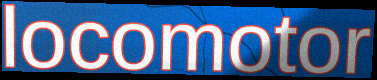
locomotor